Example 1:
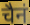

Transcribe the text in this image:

चैनं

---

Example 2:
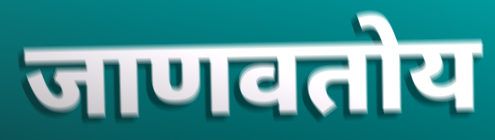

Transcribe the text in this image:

जाणवतोय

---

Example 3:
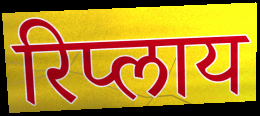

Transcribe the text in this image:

रिप्लाय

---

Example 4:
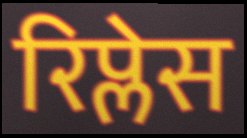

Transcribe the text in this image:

रिप्लेस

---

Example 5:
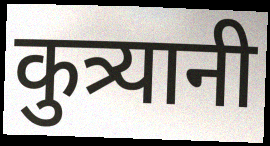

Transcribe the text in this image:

कुत्र्यानी